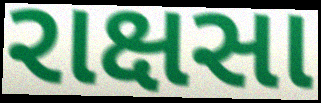
રાક્ષસા